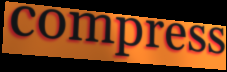
compress